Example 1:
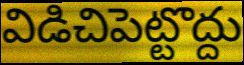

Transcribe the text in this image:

విడిచిపెట్టొద్దు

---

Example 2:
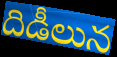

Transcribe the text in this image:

దిడీలున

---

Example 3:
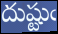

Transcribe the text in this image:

దుష్టుఁ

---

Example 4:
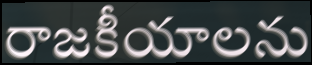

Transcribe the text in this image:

రాజకీయాలను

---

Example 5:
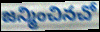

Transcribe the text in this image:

జన్మించినచో